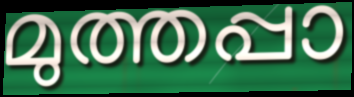
മുത്തപ്പാ